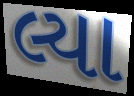
લ્યા